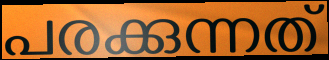
പരക്കുന്നത്